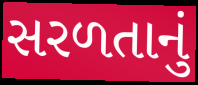
સરળતાનું